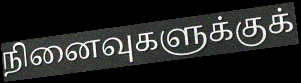
நினைவுகளுக்குக்